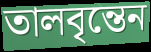
তালবৃন্তেন